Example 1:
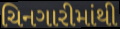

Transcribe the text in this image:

ચિનગારીમાંથી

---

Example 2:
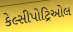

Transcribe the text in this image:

કેલ્સીપોટ્રિઓલ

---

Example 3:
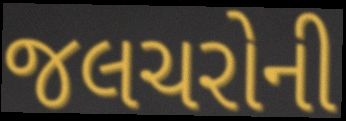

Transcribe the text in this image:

જલચરોની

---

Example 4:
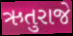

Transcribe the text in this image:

ઋતુરાજે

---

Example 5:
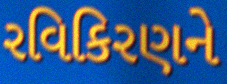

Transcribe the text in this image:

રવિકિરણને